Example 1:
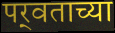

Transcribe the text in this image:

पर्वताच्या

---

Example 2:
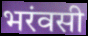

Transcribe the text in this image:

भरंवसी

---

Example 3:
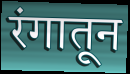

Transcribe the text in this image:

रंगातून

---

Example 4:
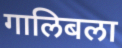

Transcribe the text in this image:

गालिबला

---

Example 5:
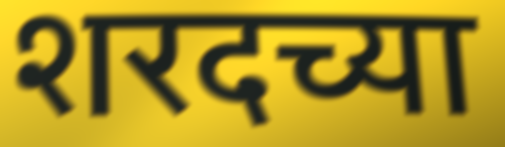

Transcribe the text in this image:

शरदच्या